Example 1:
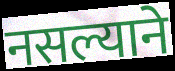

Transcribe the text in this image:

नसल्‍याने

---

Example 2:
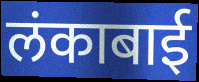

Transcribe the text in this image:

लंकाबाई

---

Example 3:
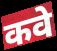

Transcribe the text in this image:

कवे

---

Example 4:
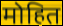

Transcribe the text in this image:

मोहित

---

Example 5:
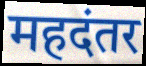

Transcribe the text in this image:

महदंतर